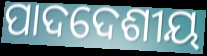
ପାଦଦେଶୀୟ